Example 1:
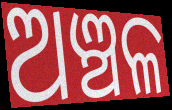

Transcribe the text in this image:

ଅଞ୍ଚଳ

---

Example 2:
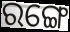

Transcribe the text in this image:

ରଙ୍ଗେ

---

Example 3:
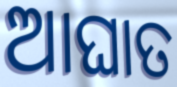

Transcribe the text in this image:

ଆଘାତ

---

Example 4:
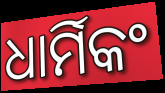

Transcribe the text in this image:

ଧାର୍ମିକଂ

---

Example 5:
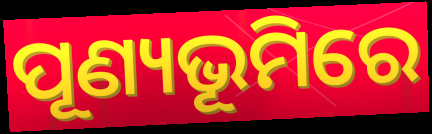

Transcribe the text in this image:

ପୂଣ୍ୟଭୂମିରେ